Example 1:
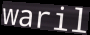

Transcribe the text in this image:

waril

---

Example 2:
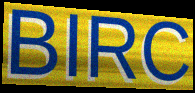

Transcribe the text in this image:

BIRC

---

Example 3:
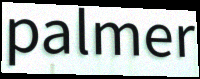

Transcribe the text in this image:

palmer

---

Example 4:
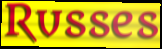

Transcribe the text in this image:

Russes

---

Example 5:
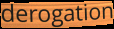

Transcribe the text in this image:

derogation